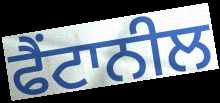
ਫੈਂਟਾਨੀਲ